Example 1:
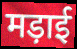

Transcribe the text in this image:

मड़ाई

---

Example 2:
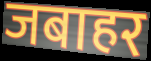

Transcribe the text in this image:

जबाहर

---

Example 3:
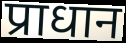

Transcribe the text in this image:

प्राधान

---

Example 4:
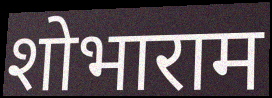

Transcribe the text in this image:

शोभाराम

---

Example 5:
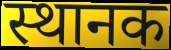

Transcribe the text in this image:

स्थानक